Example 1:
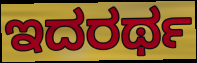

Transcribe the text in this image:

ಇದರರ್ಥ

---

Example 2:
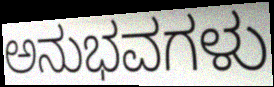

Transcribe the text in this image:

ಅನುಭವಗಳು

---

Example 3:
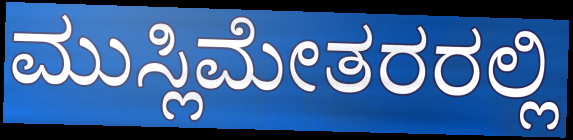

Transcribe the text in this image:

ಮುಸ್ಲಿಮೇತರರಲ್ಲಿ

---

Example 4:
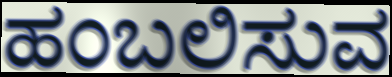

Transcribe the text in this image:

ಹಂಬಲಿಸುವ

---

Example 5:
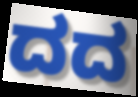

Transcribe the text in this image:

ದದ